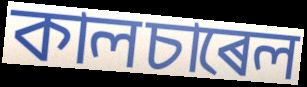
কালচাৰেল